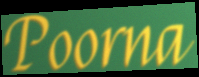
Poorna